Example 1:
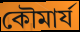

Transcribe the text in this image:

কৌমার্য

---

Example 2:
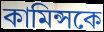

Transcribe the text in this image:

কামিন্সকে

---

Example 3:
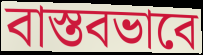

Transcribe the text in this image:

বাস্তবভাবে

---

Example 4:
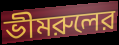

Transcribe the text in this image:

ভীমরুলের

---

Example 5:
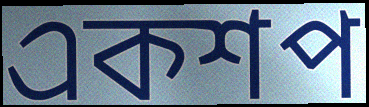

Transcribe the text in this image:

একশপ